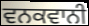
ਵਨਕਵਾਨੀ